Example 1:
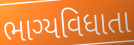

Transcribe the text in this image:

ભાગ્યવિધાતા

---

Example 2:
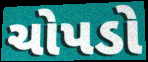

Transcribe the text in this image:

ચોપડો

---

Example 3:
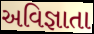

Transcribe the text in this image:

અવિજ્ઞાતા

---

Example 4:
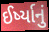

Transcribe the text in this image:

ઈર્ષ્યાનું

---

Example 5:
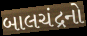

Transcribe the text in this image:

બાલચંદ્રનો